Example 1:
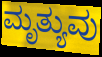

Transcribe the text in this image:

ಮೃತ್ಯುವು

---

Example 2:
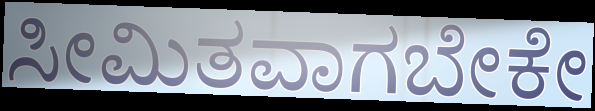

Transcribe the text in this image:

ಸೀಮಿತವಾಗಬೇಕೇ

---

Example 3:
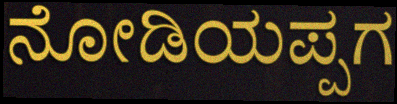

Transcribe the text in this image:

ನೋಡಿಯಪ್ಪಗ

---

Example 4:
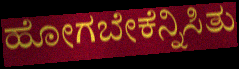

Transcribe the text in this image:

ಹೋಗಬೇಕೆನ್ನಿಸಿತು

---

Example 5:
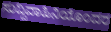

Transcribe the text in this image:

ಸುದ್ದಿವಾಹಿನಿಯೊಂದರ